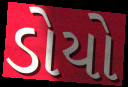
ડોયો